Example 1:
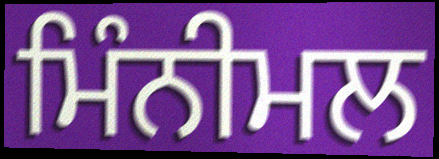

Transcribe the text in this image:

ਮਿੰਨੀਮਲ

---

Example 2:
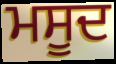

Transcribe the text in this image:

ਮਸੂਦ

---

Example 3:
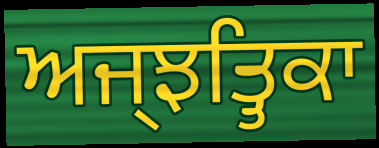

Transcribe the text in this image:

ਅਜ੍ਝਤ੍ਤਿਕਾ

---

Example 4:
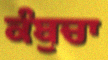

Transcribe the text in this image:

ਕੰਬੁਚਾ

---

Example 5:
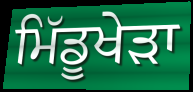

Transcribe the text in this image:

ਮਿੱਡੂਖੇੜਾ